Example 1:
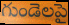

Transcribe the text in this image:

గుండెలపై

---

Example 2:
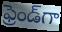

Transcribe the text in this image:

ఫ్రెండ్‌గా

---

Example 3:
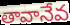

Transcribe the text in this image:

తావానేవ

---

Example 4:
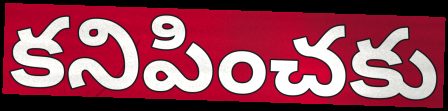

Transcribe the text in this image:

కనిపించకు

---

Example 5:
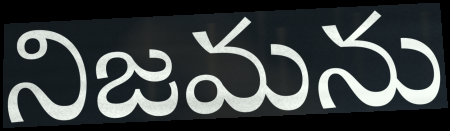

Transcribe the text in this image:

నిజమను